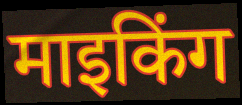
माइकिंग